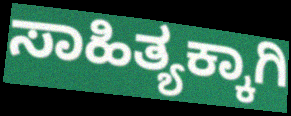
ಸಾಹಿತ್ಯಕ್ಕಾಗಿ